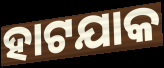
ହାଟଯାକ